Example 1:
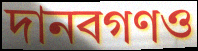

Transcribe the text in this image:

দানবগণও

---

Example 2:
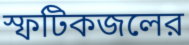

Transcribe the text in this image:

স্ফটিকজলের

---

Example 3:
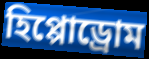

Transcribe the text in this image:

হিপ্পোড্রোম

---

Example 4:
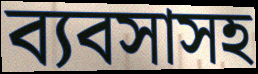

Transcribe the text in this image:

ব্যবসাসহ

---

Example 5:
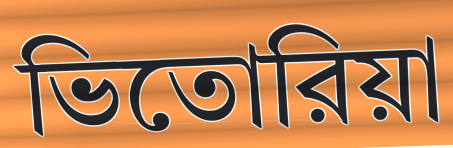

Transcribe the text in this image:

ভিতোরিয়া